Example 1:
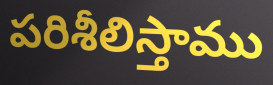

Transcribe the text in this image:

పరిశీలిస్తాము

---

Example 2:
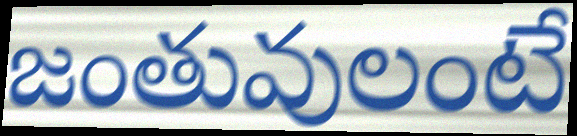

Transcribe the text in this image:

జంతువులంటే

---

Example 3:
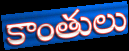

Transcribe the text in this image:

కాంతులు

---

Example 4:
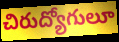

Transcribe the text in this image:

చిరుద్యోగులూ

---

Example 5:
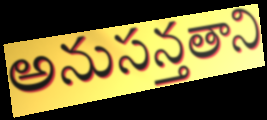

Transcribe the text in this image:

అనుసన్తతాని